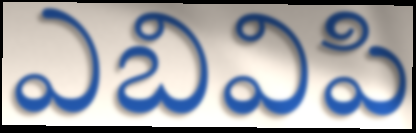
ఎబివిపి